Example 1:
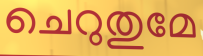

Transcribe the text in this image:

ചെറുതുമേ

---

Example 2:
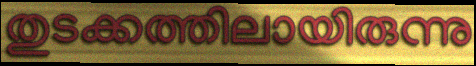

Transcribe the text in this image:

തുടക്കത്തിലായിരുന്നു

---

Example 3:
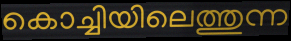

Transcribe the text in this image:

കൊച്ചിയിലെത്തുന്ന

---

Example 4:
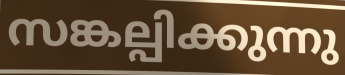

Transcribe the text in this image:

സങ്കല്പിക്കുന്നു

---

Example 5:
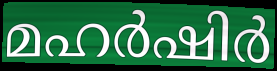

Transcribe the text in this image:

മഹർഷിർ